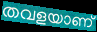
തവളയാണ്